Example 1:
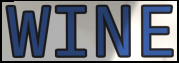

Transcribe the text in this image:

WINE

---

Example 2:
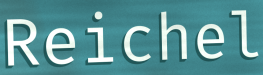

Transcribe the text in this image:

Reichel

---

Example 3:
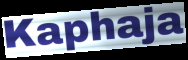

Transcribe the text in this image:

Kaphaja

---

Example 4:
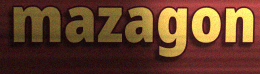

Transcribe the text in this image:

mazagon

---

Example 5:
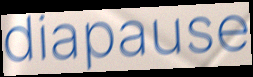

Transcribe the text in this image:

diapause